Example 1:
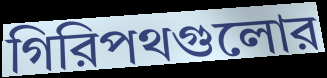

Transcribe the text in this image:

গিরিপথগুলোর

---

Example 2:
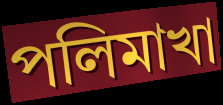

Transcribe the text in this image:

পলিমাখা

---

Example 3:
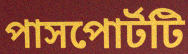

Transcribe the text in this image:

পাসপোর্টটি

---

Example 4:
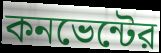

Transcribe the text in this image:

কনভেন্টের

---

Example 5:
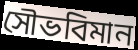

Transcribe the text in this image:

সৌভবিমান